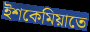
ইশকেমিয়াতে